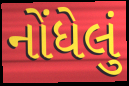
નોંધેલું